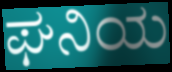
ಘನಿಯ